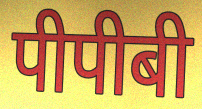
पीपीबी